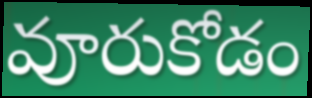
వూరుకోడం